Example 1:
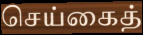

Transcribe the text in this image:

செய்கைத்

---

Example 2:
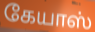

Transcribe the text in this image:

கேயாஸ்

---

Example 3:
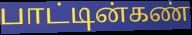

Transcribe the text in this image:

பாட்டின்கண்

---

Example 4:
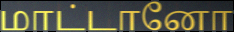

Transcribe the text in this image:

மாட்டானோ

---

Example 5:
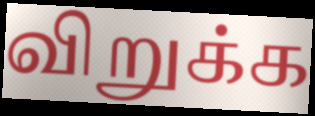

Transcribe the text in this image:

விறுக்க